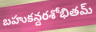
బహుకన్దరశోభితమ్